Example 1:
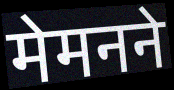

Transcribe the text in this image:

मेमनने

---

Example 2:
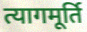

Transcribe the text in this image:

त्यागमूर्ति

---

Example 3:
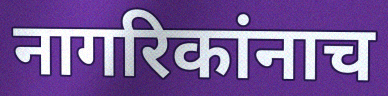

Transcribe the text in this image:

नागरिकांनाच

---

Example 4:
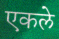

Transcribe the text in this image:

एकले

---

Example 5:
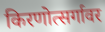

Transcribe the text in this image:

किरणोत्सर्गावर